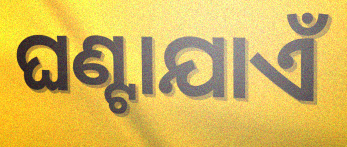
ଘଣ୍ଟାଯାଏଁ